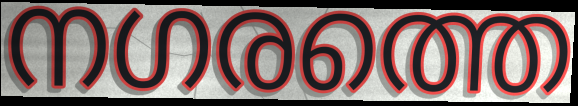
നഗരത്തെ